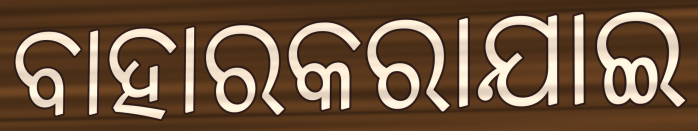
ବାହାରକରାଯାଇ